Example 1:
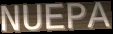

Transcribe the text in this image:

NUEPA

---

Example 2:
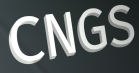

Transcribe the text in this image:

CNGS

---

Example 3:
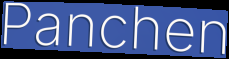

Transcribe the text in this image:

Panchen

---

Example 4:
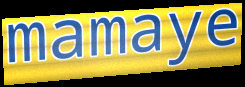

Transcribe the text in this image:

mamaye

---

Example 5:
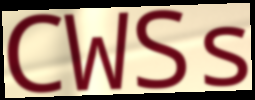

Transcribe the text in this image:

CWSs